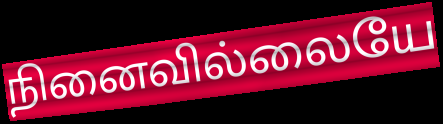
நினைவில்லையே